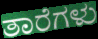
ತಾರೆಗಳು